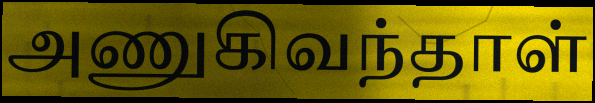
அணுகிவந்தாள்